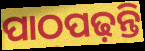
ପାଠପଢ଼ନ୍ତି